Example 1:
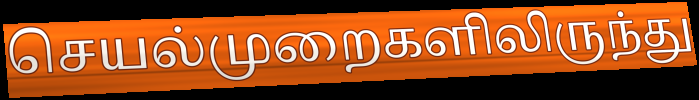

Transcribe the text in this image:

செயல்முறைகளிலிருந்து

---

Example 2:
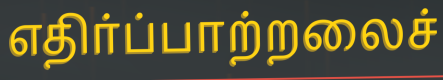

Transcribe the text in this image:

எதிர்ப்பாற்றலைச்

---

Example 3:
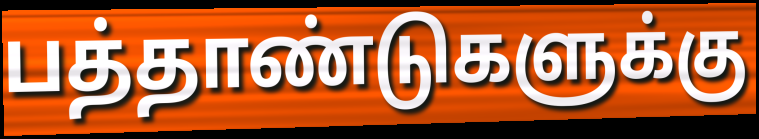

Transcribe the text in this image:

பத்தாண்டுகளுக்கு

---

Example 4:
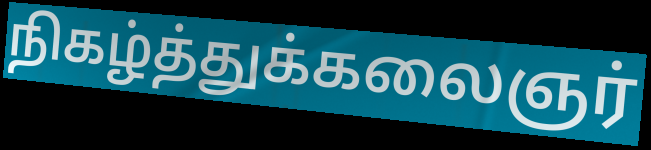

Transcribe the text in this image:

நிகழ்த்துக்கலைஞர்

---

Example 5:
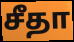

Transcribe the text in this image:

சீதா